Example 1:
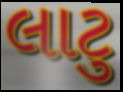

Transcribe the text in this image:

લાટુ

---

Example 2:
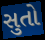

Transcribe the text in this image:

સુતો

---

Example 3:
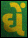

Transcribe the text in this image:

ઘેં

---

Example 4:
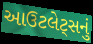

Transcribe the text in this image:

આઉટલેટ્સનું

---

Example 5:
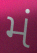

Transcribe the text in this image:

મં